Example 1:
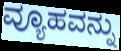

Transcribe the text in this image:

ವ್ಯೂಹವನ್ನು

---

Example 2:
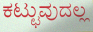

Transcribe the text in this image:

ಕಟ್ಟುವುದಲ್ಲ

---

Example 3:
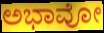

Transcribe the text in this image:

ಅಭಾವೋ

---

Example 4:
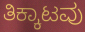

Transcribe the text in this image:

ತಿಕ್ಕಾಟವು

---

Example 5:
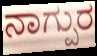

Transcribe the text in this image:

ನಾಗ್ಪುರ